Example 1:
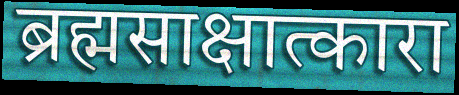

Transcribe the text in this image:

ब्रह्मसाक्षात्कारा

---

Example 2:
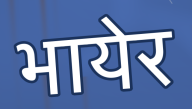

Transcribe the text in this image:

भायेर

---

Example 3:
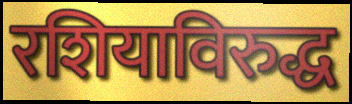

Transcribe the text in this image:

रशियाविरुद्ध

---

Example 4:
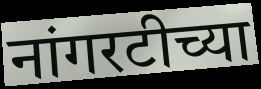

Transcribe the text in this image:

नांगरटीच्या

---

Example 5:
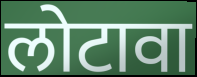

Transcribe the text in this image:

लोटावा